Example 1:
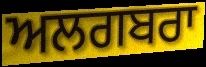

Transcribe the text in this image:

ਅਲਗਬਰਾ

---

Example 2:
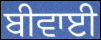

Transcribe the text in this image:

ਬੀਵਾਈ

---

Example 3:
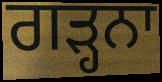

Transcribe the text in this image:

ਗੜ੍ਹਨਾ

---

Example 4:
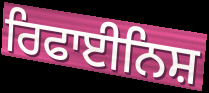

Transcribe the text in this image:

ਰਿਫਾਈਨਿਸ਼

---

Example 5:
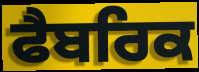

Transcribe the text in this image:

ਫੈਬਰਿਕ